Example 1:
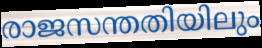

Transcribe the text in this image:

രാജസന്തതിയിലും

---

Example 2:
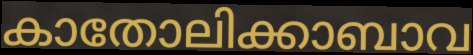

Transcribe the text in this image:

കാതോലിക്കാബാവ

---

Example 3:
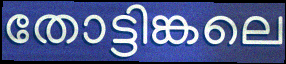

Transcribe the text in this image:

തോട്ടിങ്കലെ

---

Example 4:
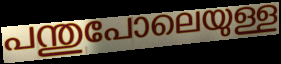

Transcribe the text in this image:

പന്തുപോലെയുള്ള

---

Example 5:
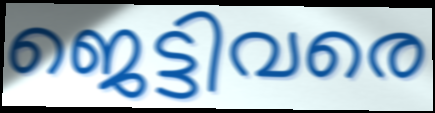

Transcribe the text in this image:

ജെട്ടിവരെ